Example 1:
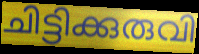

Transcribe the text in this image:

ചിട്ടിക്കുരുവി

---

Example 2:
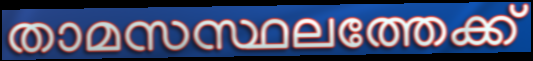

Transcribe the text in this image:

താമസസ്ഥലത്തേക്ക്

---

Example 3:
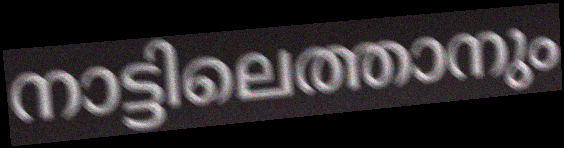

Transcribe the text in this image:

നാട്ടിലെത്താനും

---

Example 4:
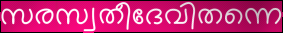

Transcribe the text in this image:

സരസ്വതീദേവിതന്നെ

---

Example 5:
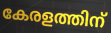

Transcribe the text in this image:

കേരളത്തിന്